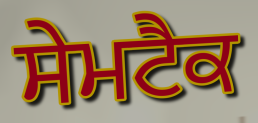
ਸੇਮਟੈਕ